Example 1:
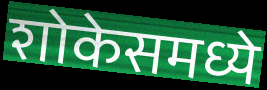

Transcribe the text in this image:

शोकेसमध्ये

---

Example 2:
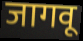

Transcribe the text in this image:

जागवू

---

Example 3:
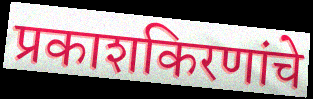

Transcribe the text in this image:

प्रकाशकिरणांचे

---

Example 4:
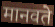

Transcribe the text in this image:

मानवते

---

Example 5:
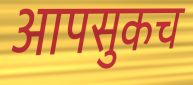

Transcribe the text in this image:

आपसुकच